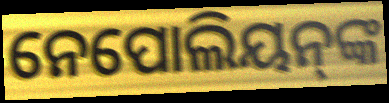
ନେପୋଲିୟନ୍‍ଙ୍କ